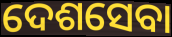
ଦେଶସେବା